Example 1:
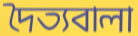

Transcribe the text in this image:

দৈত্যবালা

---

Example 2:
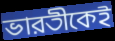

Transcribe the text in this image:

ভারতীকেই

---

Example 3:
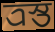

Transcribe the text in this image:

ত্রস্ত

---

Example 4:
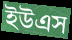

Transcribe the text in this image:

ইউএস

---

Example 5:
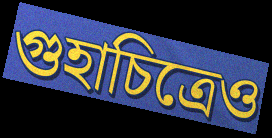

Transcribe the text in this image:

গুহাচিত্রেও